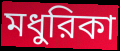
মধুরিকা